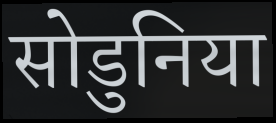
सोडुनिया